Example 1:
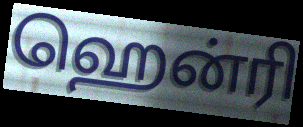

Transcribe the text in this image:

ஹென்ரி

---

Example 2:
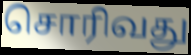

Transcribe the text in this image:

சொரிவது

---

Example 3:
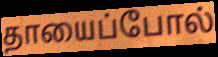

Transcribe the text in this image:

தாயைப்போல்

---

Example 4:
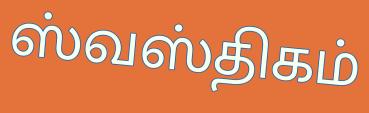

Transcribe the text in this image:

ஸ்வஸ்திகம்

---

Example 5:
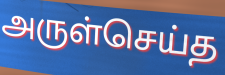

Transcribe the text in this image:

அருள்செய்த